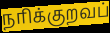
நரிக்குறவப்